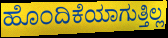
ಹೊಂದಿಕೆಯಾಗುತ್ತಿಲ್ಲ